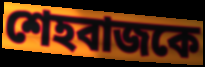
শেহবাজকে